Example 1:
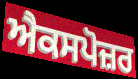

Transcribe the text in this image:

ਐਕਸਪੋਜ਼ਰ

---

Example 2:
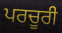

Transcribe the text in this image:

ਪਰਚੂਰੀ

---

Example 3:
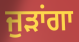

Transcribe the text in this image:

ਜੁੜਾਂਗਾ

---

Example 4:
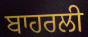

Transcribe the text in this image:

ਬਾਹਰਲੀ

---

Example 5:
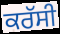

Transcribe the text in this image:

ਕਰੱਸੀ